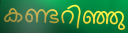
കണ്ടറിഞ്ഞു